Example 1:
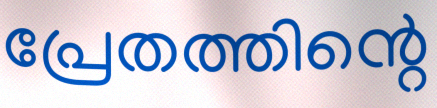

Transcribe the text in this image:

പ്രേതത്തിന്റെ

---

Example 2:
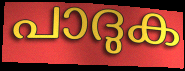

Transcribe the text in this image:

പാദുക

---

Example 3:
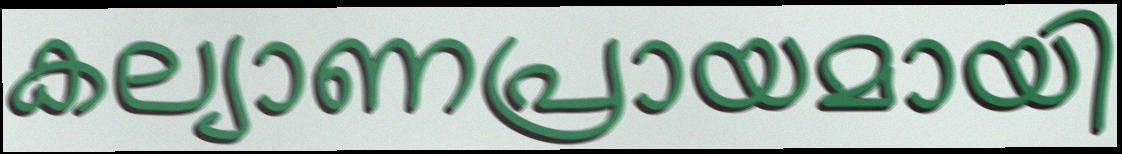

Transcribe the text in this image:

കല്യാണപ്രായമായി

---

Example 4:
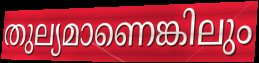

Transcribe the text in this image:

തുല്യമാണെങ്കിലും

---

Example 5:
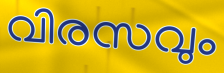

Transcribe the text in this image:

വിരസവും